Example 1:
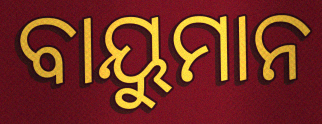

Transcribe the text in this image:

ବାୟୁମାନ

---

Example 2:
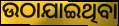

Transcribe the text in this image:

ଉଠାଯାଇଥିବା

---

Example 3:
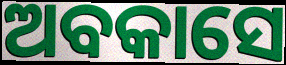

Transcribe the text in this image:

ଅବକାସେ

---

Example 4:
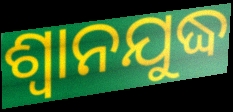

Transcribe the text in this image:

ଶ୍ଵାନଯୁଦ୍ଧ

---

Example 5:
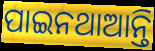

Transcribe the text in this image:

ପାଇନଥାଆନ୍ତି